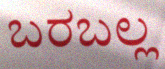
ಬರಬಲ್ಲ